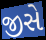
જીસે